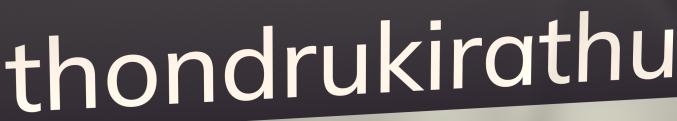
thondrukirathu